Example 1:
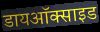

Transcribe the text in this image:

डायऑक्साइड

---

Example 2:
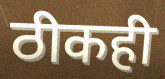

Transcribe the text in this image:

ठीकही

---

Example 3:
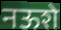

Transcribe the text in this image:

नऊशे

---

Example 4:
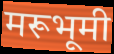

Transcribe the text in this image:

मरूभूमी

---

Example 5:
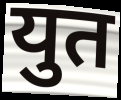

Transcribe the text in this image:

युत